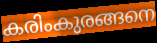
കരിംകുരങ്ങനെ